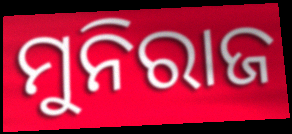
ମୁନିରାଜ